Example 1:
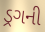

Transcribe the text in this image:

ડ્રગની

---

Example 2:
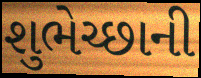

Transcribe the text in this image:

શુભેચ્છાની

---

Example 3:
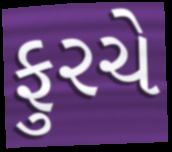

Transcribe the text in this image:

ફુરચે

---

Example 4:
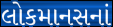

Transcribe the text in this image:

લોકમાનસનાં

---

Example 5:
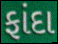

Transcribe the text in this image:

ફાંદા